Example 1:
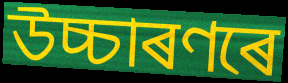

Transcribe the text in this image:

উচ্চাৰণৰে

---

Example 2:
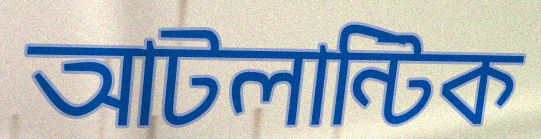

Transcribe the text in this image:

আটলান্টিক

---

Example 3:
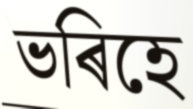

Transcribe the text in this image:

ভৰিহে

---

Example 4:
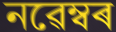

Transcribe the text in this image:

নৱেম্বৰ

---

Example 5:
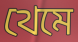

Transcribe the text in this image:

থেমে